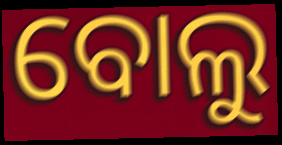
ବୋଲୁ